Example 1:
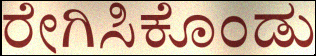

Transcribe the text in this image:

ರೇಗಿಸಿಕೊಂಡು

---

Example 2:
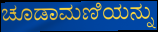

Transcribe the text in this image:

ಚೂಡಾಮಣಿಯನ್ನು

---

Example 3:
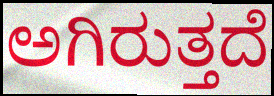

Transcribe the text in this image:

ಅಗಿರುತ್ತದೆ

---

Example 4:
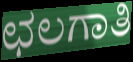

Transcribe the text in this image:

ಛಲಗಾತಿ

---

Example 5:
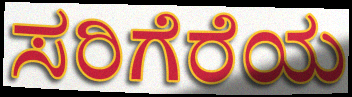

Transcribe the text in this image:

ಸರಿಗೆರೆಯ